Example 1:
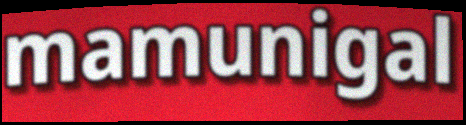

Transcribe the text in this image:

mamunigal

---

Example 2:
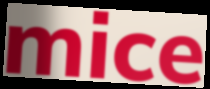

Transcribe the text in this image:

mice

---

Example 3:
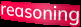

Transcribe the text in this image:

reasoning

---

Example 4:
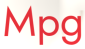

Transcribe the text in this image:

Mpg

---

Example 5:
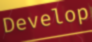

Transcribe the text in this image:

Develop